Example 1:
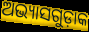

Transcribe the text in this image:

ଅଭ୍ୟାସଗୁଡ଼ାକ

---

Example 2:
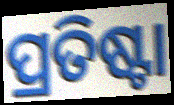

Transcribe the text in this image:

ପ୍ରତିଷ୍ଟା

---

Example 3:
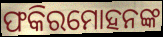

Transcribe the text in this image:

ଫକିରମୋହନଙ୍କ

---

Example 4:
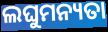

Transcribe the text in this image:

ଲଘୁମନ୍ୟତା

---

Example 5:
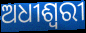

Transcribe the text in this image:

ଅଧୀଶ୍ୱରୀ